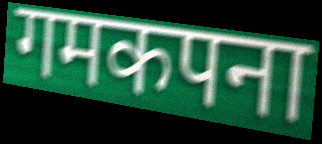
गमकपना